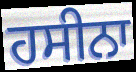
ਹਸੀਨਾ